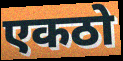
एकठो